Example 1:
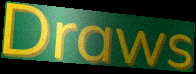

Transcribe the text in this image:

Draws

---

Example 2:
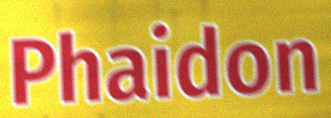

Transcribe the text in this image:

Phaidon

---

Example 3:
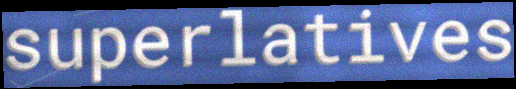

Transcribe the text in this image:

superlatives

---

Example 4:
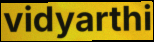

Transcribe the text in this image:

vidyarthi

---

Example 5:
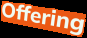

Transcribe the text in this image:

Offering